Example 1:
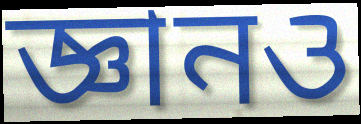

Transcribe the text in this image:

জ্ঞানও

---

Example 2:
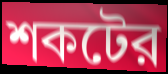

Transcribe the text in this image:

শকটের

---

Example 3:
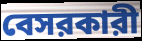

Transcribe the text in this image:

বেসরকারী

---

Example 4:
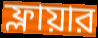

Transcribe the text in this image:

ফ্লায়ার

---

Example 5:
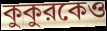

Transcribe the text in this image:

কুকুরকেও